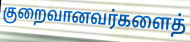
குறைவானவர்களைத்